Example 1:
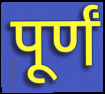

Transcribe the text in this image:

पूर्णं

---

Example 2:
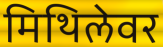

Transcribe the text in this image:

मिथिलेवर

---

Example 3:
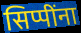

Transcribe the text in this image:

सिप्पींना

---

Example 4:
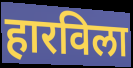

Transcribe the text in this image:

हारविला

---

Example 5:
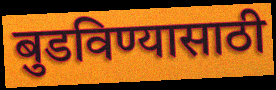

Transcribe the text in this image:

बुडविण्यासाठी